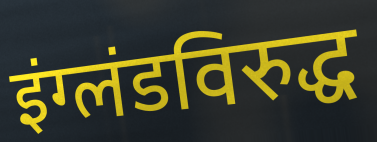
इंग्लंडविरुद्ध